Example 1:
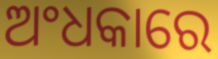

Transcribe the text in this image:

ଅଂଧକାରେ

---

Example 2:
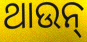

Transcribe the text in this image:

ଥାଉନ୍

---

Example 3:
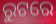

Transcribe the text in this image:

ରୁଟରେ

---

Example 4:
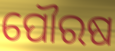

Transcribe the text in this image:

ପୌରଷ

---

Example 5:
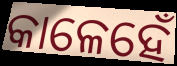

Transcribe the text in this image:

କାଳେହେଁ